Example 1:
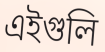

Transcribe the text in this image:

এইগুলি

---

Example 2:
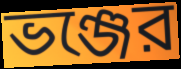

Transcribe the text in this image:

ভঞ্জের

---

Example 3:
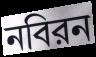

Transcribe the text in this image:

নবিরন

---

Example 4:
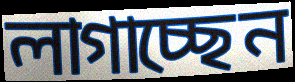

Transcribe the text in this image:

লাগাচ্ছেন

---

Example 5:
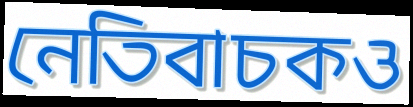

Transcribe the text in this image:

নেতিবাচকও